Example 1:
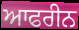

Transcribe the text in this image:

ਆਫਰੀਨ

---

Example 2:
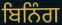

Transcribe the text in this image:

ਬਿਨਿੰਗ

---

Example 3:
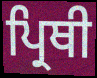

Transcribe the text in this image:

ਪ੍ਰਿਥੀ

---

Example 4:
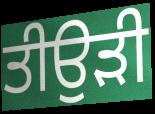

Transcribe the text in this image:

ਤੀਉੜੀ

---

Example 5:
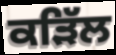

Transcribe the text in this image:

ਕੜਿੱਲ